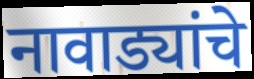
नावाड्यांचे